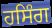
ਹਸਿੰਗ